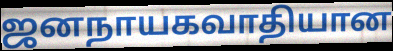
ஜனநாயகவாதியான